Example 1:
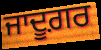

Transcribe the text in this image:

ਜਾਦੂਗ਼ਰ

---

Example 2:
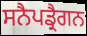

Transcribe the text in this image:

ਸਨੈਪਡ੍ਰੈਗਨ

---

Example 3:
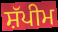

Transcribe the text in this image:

ਸ਼ੱਪੀਮ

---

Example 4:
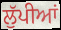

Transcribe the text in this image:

ਲੁੱਪੀਆਂ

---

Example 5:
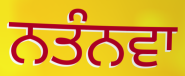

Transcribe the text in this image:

ਨਤੰਨਵਾ